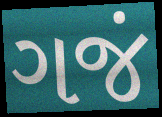
ગજં